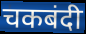
चकबंदी